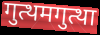
गुत्थमगुत्था